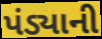
પંડ્યાની